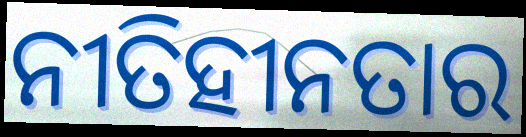
ନୀତିହୀନତାର